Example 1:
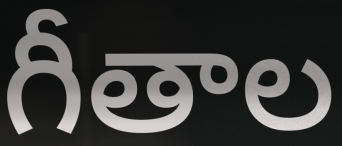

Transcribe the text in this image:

గీతాల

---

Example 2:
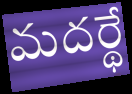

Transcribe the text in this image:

మదర్థే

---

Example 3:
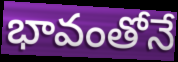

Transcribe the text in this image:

భావంతోనే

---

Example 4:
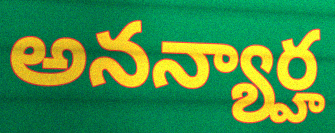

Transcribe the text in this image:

అనన్యార్హ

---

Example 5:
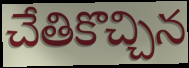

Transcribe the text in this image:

చేతికొచ్చిన